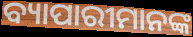
ବ୍ୟାପାରୀମାନଙ୍କ